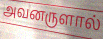
அவனருளால்